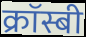
क्रॉस्बी